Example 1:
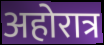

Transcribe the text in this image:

अहोरात्र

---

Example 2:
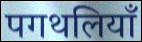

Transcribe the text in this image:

पगथलियाँ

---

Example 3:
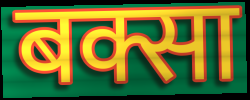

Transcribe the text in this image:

बक्सा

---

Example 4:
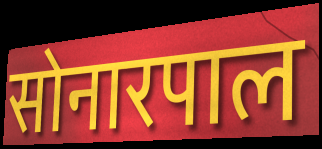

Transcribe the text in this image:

सोनारपाल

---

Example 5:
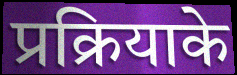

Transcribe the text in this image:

प्रक्रियाके